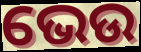
ଭେଉ